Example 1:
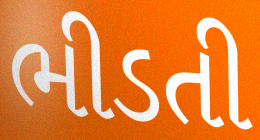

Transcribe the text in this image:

ભીડતી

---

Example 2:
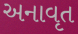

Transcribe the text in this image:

અનાવૃત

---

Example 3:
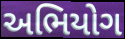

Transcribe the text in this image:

અભિયોગ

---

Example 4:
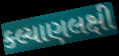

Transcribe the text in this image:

કલ્યાણલક્ષી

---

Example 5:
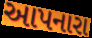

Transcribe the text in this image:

આપનારા